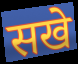
सखे